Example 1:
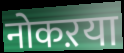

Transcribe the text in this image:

नोकऱया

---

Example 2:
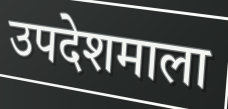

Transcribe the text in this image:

उपदेशमाला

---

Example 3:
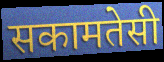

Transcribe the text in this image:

सकामतेसी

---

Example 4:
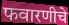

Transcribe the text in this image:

फवारणीचे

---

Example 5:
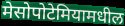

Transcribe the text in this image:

मेसोपोटेमियामधील